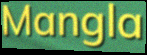
Mangla